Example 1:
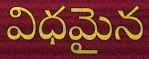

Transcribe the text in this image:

విధమైన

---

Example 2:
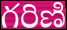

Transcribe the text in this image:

గరిణి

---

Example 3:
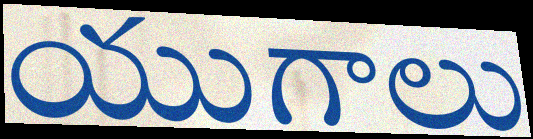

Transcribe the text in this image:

యుగాలు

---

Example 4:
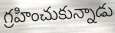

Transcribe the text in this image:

గ్రహించుకున్నాడు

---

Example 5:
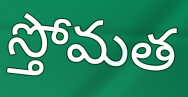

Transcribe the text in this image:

స్తోమత